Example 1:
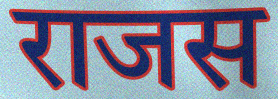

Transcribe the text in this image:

राजस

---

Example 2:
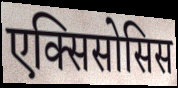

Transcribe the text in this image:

एक्सिसोसिस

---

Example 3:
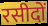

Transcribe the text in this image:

रसीदों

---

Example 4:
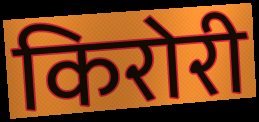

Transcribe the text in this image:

किरोरी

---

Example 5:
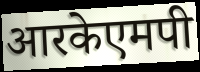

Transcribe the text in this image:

आरकेएमपी